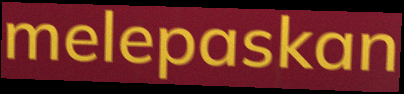
melepaskan